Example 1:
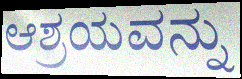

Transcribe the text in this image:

ಆಶ್ರಯವನ್ನು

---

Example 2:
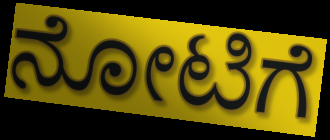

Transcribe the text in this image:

ನೋಟಿಗೆ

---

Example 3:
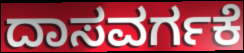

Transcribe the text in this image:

ದಾಸವರ್ಗಕೆ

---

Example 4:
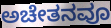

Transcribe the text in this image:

ಅಚೇತನವೂ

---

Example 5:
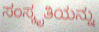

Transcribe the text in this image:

ಸಂಸ್ಕೃತಿಯನ್ನು